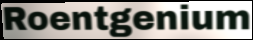
Roentgenium